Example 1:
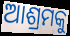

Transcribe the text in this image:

ଆଶ୍ରମକୁ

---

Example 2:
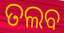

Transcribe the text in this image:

ତଲବ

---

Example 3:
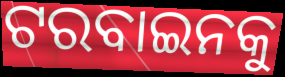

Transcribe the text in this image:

ଟରବାଇନକୁ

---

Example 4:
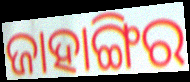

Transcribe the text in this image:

ଜାହାଙ୍ଗିର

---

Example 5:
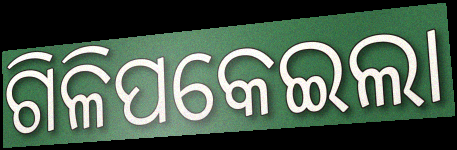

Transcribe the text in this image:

ଗିଳିପକେଇଲା